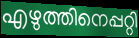
എഴുത്തിനെപ്പറ്റി